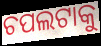
ଚପଲଟାକୁ